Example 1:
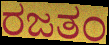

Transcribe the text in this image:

ರಜತಂ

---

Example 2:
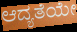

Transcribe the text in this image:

ಆದ್ಯತೆಯೇ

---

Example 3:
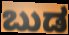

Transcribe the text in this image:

ಬುಡ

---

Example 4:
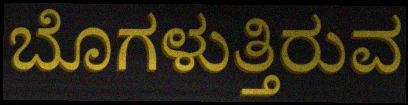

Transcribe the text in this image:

ಬೊಗಳುತ್ತಿರುವ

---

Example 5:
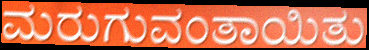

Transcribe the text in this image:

ಮರುಗುವಂತಾಯಿತು